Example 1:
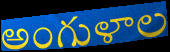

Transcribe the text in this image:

అంగుళాల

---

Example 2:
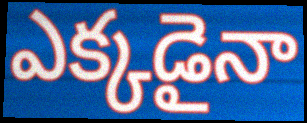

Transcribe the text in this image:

ఎక్కడైనా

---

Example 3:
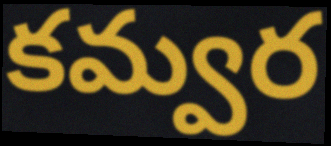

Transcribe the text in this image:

కమ్వర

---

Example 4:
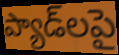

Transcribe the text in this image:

ప్యాడ్‌లపై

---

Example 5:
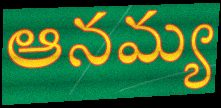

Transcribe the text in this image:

ఆనమ్య